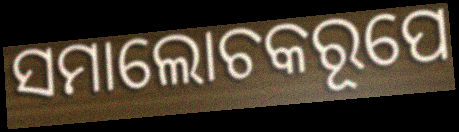
ସମାଲୋଚକରୂପେ